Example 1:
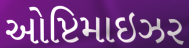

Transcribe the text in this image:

ઓપ્ટિમાઇઝર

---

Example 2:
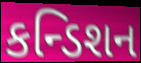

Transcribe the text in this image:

કન્ડિશન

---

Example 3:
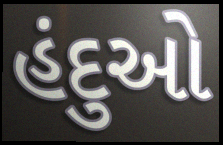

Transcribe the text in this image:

હંદુઓ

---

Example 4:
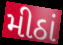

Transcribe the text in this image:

મીઠાં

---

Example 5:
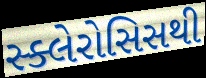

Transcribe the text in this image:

સ્ક્લેરોસિસથી